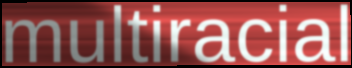
multiracial